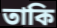
তাকি